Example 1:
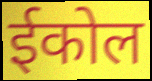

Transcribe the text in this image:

ईकोल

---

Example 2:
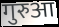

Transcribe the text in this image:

गुरुआ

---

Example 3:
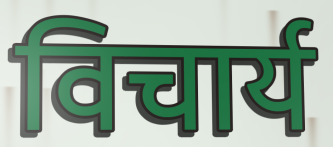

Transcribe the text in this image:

विचार्य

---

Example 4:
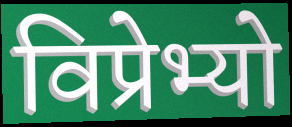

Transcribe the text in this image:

विप्रेभ्यो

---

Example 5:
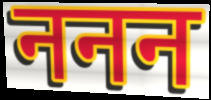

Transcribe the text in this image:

ननन